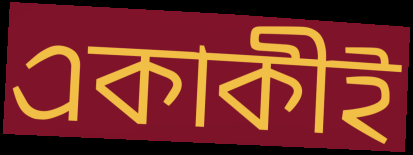
একাকীই